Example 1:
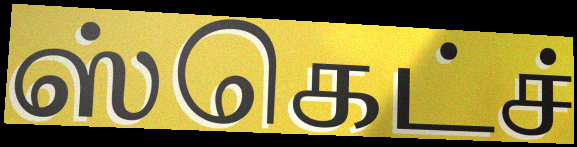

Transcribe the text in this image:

ஸ்கெட்ச்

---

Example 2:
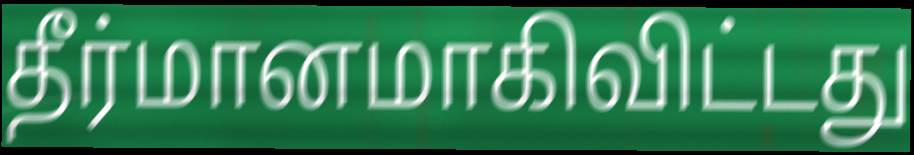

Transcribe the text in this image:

தீர்மானமாகிவிட்டது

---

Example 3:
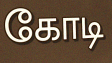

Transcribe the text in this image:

கோடி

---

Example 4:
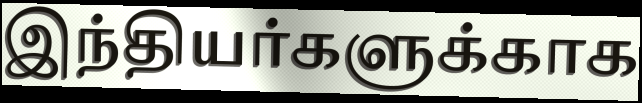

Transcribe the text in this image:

இந்தியர்களுக்காக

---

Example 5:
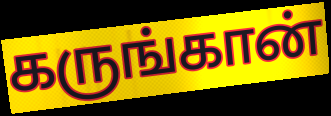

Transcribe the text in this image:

கருங்கான்